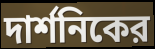
দার্শনিকের